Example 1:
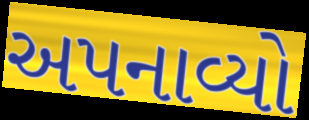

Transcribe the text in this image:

અપનાવ્યો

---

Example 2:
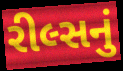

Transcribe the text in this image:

રીલ્સનું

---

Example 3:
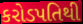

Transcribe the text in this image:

કરોડપતિથી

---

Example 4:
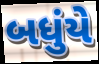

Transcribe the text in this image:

બધુંયે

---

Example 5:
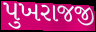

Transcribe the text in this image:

પુખરાજજી